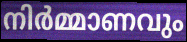
നിർമ്മാണവും